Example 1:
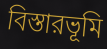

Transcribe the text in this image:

বিস্তারভূমি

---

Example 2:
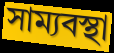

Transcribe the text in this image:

সাম্যবস্থা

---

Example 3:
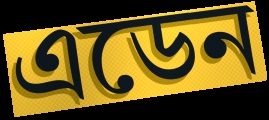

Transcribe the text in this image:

এডেন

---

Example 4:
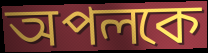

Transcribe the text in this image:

অপলকে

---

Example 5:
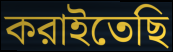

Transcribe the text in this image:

করাইতেছি